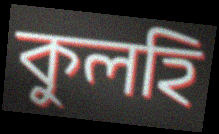
কুলহি